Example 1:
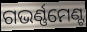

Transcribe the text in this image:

ଗଭର୍ଣ୍ଣମେଣ୍ଟ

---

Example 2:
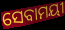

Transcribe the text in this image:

ସେବାମୟୀ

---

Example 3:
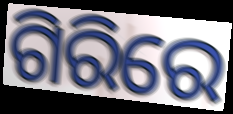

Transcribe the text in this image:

ଗିରିରେ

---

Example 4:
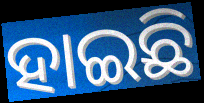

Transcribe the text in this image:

ହାଇଛି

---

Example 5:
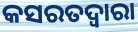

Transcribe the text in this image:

କସରତଦ୍ୱାରା